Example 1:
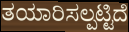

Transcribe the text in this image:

ತಯಾರಿಸಲ್ಪಟ್ಟಿದೆ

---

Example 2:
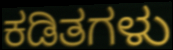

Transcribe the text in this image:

ಕಡಿತಗಳು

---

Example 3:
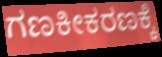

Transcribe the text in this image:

ಗಣಕೀಕರಣಕ್ಕೆ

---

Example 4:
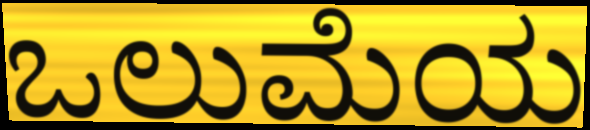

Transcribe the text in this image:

ಒಲುಮೆಯ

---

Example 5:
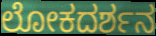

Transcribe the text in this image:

ಲೋಕದರ್ಶನ